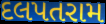
દલપતરામ